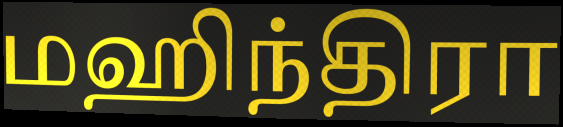
மஹிந்திரா